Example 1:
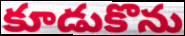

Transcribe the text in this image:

కూడుకొను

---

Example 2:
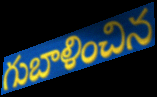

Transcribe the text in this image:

గుబాళించిన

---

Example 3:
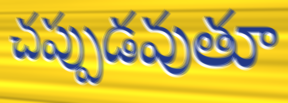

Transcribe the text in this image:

చప్పుడవుతూ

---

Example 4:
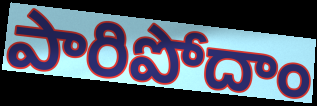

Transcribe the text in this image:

పారిపోదాం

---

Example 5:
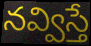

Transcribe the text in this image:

నవ్విస్తే